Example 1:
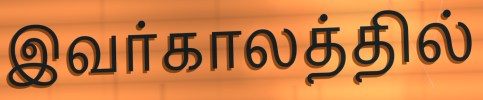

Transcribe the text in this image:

இவர்காலத்தில்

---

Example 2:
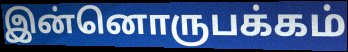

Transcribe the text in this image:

இன்னொருபக்கம்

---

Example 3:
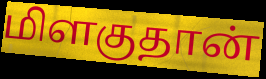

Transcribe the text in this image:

மிளகுதான்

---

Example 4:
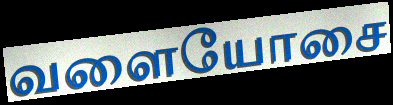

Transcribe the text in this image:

வளையோசை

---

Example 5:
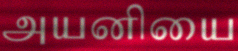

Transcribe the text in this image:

அயனியை